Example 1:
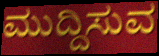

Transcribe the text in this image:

ಮುದ್ದಿಸುವ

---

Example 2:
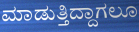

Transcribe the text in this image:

ಮಾಡುತ್ತಿದ್ದಾಗಲೂ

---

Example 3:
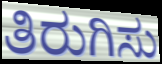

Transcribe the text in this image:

ತಿರುಗಿಸು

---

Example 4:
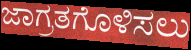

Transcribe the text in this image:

ಜಾಗ್ರತಗೊಳಿಸಲು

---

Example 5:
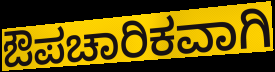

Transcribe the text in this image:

ಔಪಚಾರಿಕವಾಗಿ